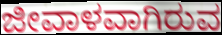
ಜೀವಾಳವಾಗಿರುವ